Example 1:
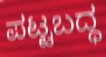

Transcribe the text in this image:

ಪಟ್ಟಬದ್ಧ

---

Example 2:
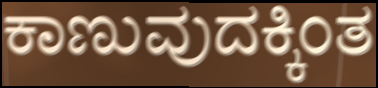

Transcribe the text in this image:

ಕಾಣುವುದಕ್ಕಿಂತ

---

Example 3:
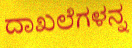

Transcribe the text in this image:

ದಾಖಲೆಗಳನ್ನ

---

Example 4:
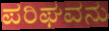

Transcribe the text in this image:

ಪರಿಘವನು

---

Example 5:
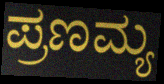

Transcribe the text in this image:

ಪ್ರಣಮ್ಯ